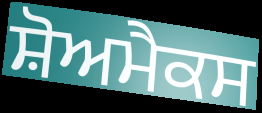
ਸ਼ੋਅਮੈਕਸ